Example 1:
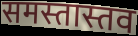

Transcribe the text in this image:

समस्तास्तव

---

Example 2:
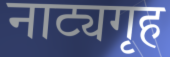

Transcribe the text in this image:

नाट्यगृह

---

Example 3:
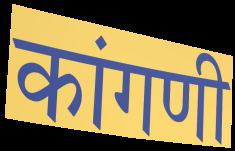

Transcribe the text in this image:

कांगणी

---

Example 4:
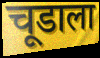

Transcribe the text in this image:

चूडाला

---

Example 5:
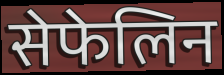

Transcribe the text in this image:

सेफेलिन